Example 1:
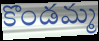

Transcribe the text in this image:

కొండమ్మ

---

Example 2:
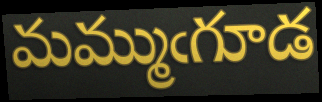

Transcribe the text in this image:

మమ్ముఁగూడ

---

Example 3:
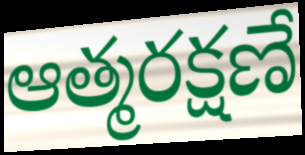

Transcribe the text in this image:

ఆత్మరక్షణే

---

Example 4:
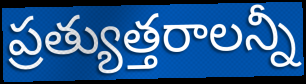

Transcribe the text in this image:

ప్రత్యుత్తరాలన్నీ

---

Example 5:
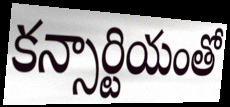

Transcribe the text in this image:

కన్సార్టియంతో